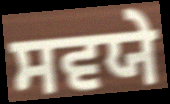
ਸਵਯੇ